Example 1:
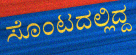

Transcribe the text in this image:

ಸೊಂಟದಲ್ಲಿದ್ದ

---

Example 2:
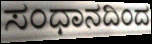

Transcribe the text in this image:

ಸಂಧಾನದಿಂದ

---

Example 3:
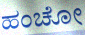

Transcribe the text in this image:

ಹಂಚೋ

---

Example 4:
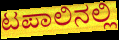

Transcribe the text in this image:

ಟಪಾಲಿನಲ್ಲಿ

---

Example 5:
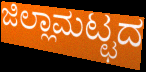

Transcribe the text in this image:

ಜಿಲ್ಲಾಮಟ್ಟದ